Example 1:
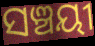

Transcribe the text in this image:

ସଞ୍ଚୟୀ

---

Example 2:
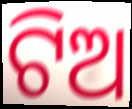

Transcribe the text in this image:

ଟିଅ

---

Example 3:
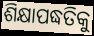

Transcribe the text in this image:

ଶିକ୍ଷାପଦ୍ଧତିକୁ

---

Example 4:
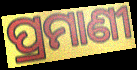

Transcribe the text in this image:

ପ୍ରମାଣୀ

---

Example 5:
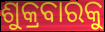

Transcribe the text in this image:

ଶୁକ୍ରବାରକୁ